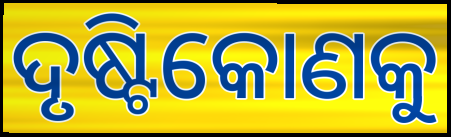
ଦୃଷ୍ଟିକୋଣକୁ